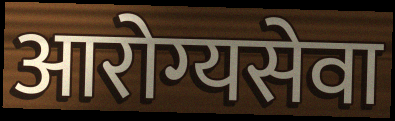
आरोग्यसेवा